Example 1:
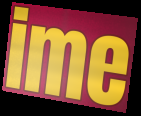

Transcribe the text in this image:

ime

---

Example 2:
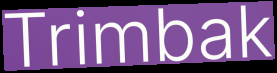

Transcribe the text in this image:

Trimbak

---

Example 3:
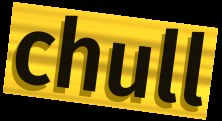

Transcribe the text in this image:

chull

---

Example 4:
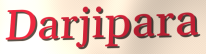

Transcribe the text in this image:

Darjipara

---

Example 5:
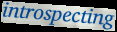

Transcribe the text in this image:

introspecting